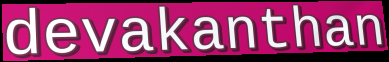
devakanthan